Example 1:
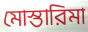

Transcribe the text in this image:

মোস্তারিমা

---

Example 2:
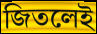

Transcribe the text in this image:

জিতলেই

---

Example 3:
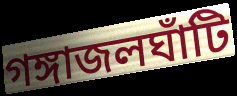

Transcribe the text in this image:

গঙ্গাজলঘাঁটি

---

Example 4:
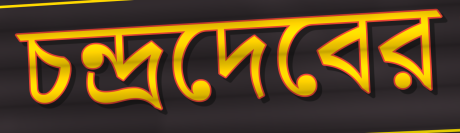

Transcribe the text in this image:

চন্দ্রদেবের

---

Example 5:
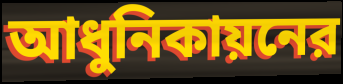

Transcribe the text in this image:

আধুনিকায়নের